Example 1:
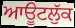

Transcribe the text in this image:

ਆਊਟਲੁੱਕ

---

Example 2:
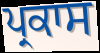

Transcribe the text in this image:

ਪ੍ਰਕਾਸ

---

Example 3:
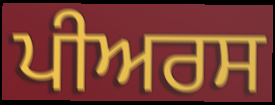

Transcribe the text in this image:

ਪੀਅਰਸ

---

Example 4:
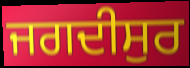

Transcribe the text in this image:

ਜਗਦੀਸੁਰ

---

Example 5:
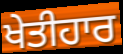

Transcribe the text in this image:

ਖੇਤੀਹਾਰ